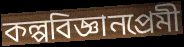
কল্পবিজ্ঞানপ্রেমী